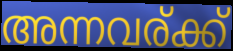
അന്നവര്ക്ക്